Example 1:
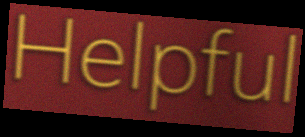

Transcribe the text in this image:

Helpful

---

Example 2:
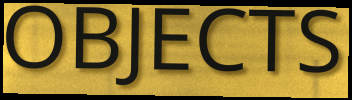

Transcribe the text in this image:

OBJECTS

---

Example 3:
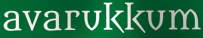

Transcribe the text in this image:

avarukkum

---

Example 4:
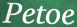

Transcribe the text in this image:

Petoe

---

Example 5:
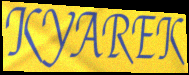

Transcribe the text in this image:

KYAREK